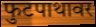
फुटपाथावर